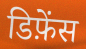
डिफ़ेंस